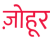
ज़ोहूर